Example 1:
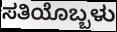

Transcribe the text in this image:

ಸತಿಯೊಬ್ಬಳು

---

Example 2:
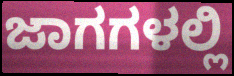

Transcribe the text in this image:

ಜಾಗಗಳಲ್ಲಿ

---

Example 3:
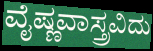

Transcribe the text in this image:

ವೈಷ್ಣವಾಸ್ತ್ರವಿದು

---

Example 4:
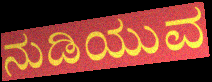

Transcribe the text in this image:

ನುಡಿಯುವ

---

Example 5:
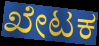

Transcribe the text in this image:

ಖೇಟಕ